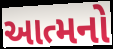
આત્મનો